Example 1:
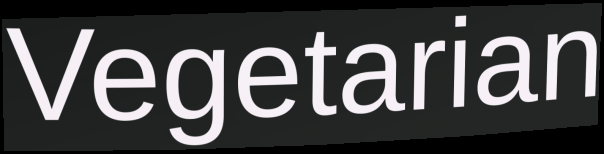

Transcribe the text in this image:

Vegetarian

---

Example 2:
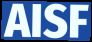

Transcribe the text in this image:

AISF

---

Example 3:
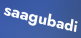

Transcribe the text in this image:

saagubadi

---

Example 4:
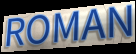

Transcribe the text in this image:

ROMAN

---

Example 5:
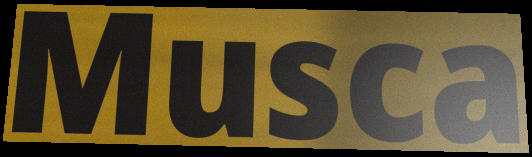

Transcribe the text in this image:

Musca